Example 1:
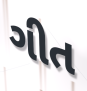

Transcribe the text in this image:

ગીત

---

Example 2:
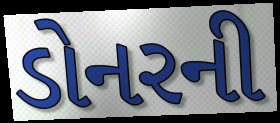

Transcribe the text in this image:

ડોનરની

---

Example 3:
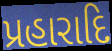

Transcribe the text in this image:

પ્રહારાદિ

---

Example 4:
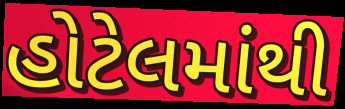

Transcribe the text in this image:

હોટેલમાંથી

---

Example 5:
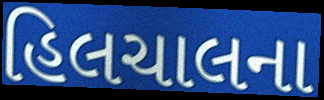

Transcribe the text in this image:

હિલચાલના